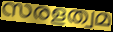
സരളത്വമ